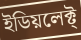
ইডিয়লেক্ট্